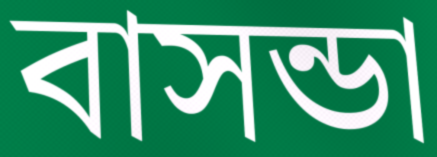
বাসন্ডা